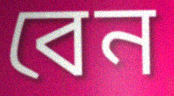
বেন